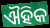
ଐହିକ